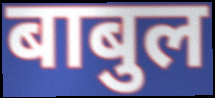
बाबुल